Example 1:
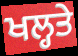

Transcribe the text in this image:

ਖਲ੍ਹਤੇ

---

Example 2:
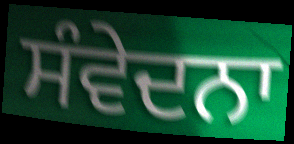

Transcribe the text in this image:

ਸੰਵੇਦਨਾ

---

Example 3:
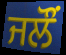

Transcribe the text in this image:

ਜਲੌਂ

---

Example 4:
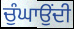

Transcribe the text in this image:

ਚੁੰਘਾਉਂਦੀ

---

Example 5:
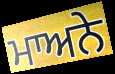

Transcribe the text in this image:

ਮਾਅਨੇ